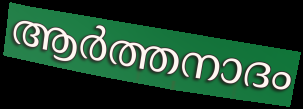
ആർത്തനാദം